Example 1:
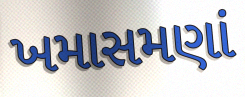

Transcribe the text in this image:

ખમાસમણાં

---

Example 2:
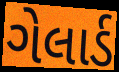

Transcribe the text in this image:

ગેલાર્ડ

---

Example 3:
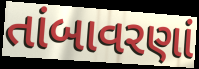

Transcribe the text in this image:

તાંબાવરણાં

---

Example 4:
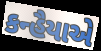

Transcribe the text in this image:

કન્હૈયાએ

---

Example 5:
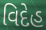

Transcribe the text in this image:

વિદેહ